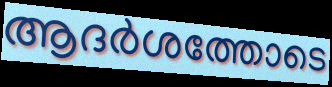
ആദർശത്തോടെ